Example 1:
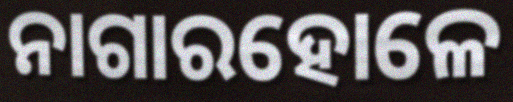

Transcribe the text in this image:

ନାଗାରହୋଳେ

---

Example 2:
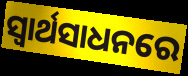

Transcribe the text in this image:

ସ୍ବାର୍ଥସାଧନରେ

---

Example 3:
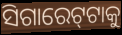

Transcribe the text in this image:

ସିଗାରେଟ୍‍ଟାକୁ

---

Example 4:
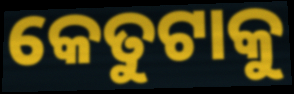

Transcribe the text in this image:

କେତୁଟାକୁ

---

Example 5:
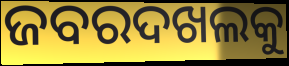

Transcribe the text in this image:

ଜବରଦଖଲକୁ